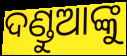
ଦଣ୍ଡୁଆଙ୍କୁ